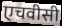
एचवीसी